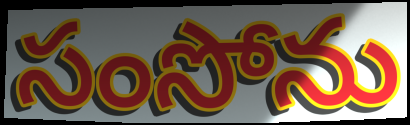
సంసోను